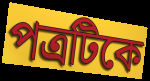
পত্রটিকে